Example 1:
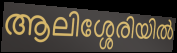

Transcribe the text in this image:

ആലിശ്ശേരിയിൽ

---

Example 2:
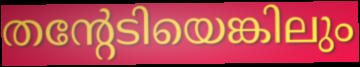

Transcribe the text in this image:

തന്റേടിയെങ്കിലും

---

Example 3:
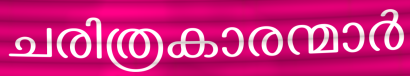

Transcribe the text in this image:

ചരിത്രകാരന്മാർ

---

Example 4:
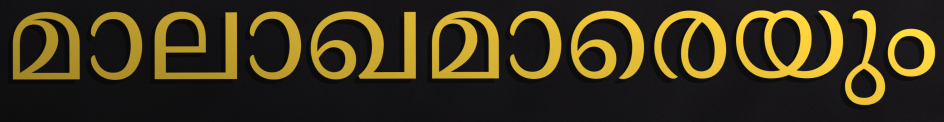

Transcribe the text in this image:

മാലാഖമാരെയും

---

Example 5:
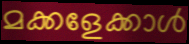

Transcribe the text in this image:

മക്കളേക്കാൾ